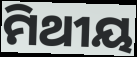
ମିଥୀୟ